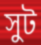
সুট